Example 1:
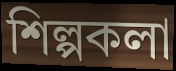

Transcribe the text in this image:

শিল্পকলা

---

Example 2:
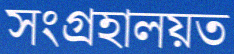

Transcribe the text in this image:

সংগ্ৰহালয়ত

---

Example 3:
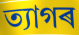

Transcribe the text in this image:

ত্যাগৰ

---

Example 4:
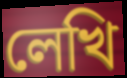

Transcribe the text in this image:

লেখি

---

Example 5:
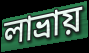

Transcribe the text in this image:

লাভ্ৰায়